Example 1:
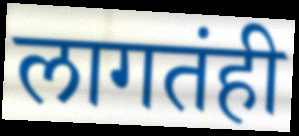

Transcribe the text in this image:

लागतंही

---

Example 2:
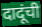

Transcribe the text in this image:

दादूंची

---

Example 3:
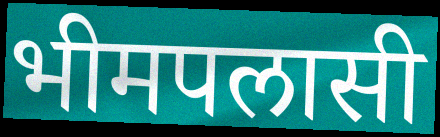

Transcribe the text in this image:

भीमपलासी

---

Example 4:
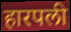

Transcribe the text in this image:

हारपली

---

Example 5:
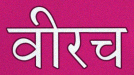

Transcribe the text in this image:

वीरच